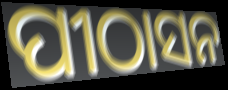
ପୀଠାସନ